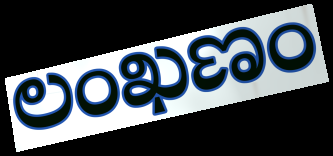
లంఖణం